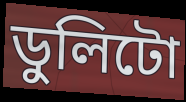
ডুলিটো